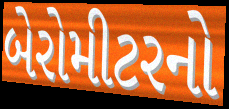
બેરોમીટરનો